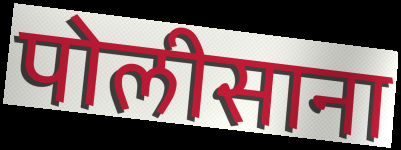
पोलीसाना